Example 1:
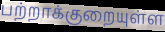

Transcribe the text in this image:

பற்றாக்குறையுள்ள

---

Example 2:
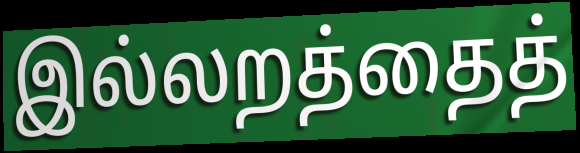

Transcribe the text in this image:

இல்லறத்தைத்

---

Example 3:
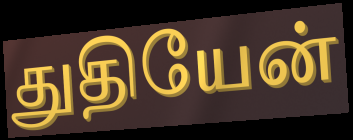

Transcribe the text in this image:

துதியேன்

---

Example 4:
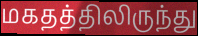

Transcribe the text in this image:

மகதத்திலிருந்து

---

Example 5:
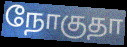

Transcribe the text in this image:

நோகுதா